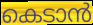
കെടാൻ